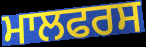
ਮਾਲਫਰਸ